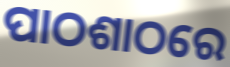
ପାଠଶାଠରେ